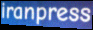
iranpress